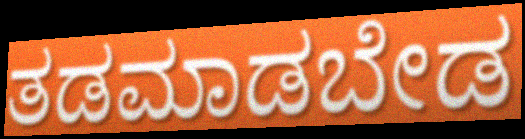
ತಡಮಾಡಬೇಡ